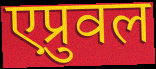
एप्रुवल